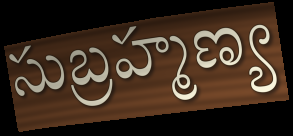
సుబ్రహ్మణ్య